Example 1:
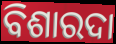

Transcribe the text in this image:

ବିଶାରଦା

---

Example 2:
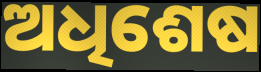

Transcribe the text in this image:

ଅଧିଶେଷ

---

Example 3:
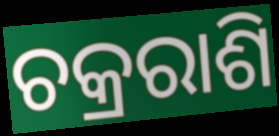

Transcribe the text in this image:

ଚକ୍ରରାଶି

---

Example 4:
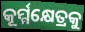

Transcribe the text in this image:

କୂର୍ମ୍ମକ୍ଷେତ୍ରକୁ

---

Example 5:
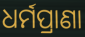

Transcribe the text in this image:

ଧର୍ମପ୍ରାଣା